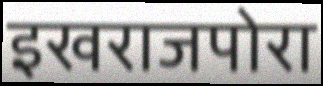
इखराजपोरा